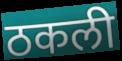
ठकली